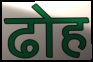
ढोह